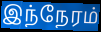
இந்நேரம்